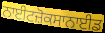
ਨਾਈਟਜ਼ੋਕਸਾਨਾਈਡ